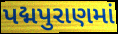
પદ્મપુરાણમાં